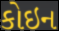
કોઇન